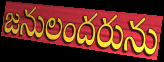
జనులందరును